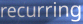
recurring